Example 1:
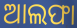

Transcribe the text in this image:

ଆଲଫା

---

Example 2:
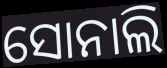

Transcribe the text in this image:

ସୋନାଲି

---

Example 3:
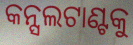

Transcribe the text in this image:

କନ୍ସଲଟାଣ୍ଟକୁ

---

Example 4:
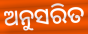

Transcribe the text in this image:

ଅନୁସରିତ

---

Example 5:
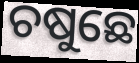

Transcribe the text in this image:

ଚଷୁଛେ